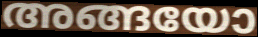
അങ്ങയോ